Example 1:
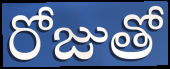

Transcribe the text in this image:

రోజుతో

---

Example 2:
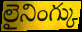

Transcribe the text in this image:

లైనింగ్కు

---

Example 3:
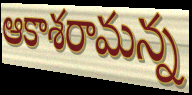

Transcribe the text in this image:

ఆకాశరామన్న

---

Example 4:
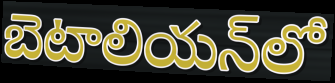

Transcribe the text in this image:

బెటాలియన్‌లో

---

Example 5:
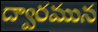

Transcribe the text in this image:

ద్వారమున